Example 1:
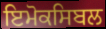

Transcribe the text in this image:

ਇਮੋਕਸਿਬਲ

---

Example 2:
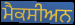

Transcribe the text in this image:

ਮੈਕਸੀਅਨ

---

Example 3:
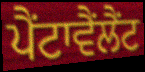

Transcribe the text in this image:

ਪੈਂਟਾਵੈਂਲੈਂਟ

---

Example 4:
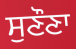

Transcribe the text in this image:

ਸੁਣੌਣਾ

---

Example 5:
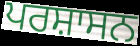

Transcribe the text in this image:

ਪਰਸ਼ਾਸਨ